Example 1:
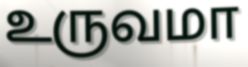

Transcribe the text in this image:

உருவமா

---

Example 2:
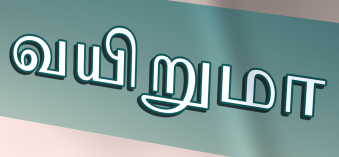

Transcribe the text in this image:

வயிறுமா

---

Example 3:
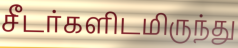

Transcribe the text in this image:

சீடர்களிடமிருந்து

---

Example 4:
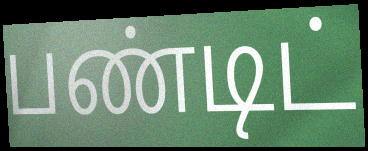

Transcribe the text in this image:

பண்டிட்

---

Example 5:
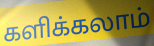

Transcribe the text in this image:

களிக்கலாம்